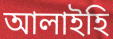
আলাইহি